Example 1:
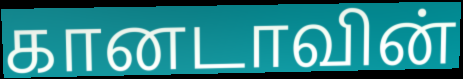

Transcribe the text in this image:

கானடாவின்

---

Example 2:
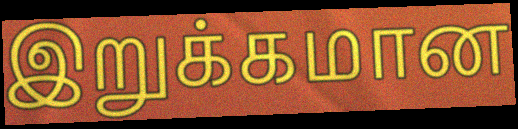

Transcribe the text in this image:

இறுக்கமான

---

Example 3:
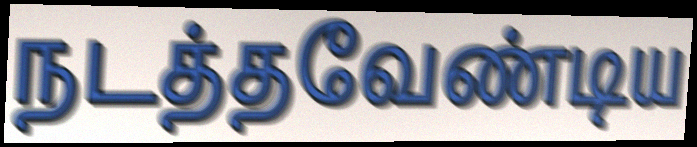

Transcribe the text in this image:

நடத்தவேண்டிய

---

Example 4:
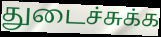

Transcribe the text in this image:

துடைச்சுக்க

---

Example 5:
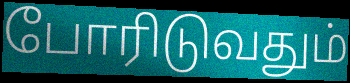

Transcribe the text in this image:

போரிடுவதும்